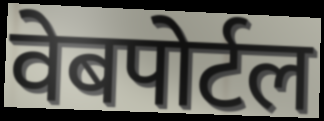
वेबपोर्टल